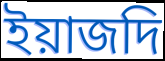
ইয়াজদি